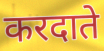
करदाते